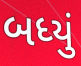
બધ્યું